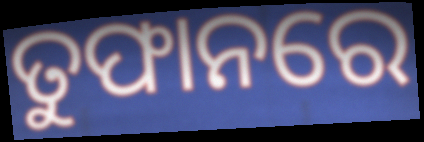
ତୁଫାନରେ